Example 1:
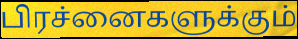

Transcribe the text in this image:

பிரச்னைகளுக்கும்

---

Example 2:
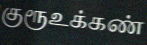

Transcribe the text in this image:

குரூஉக்கண்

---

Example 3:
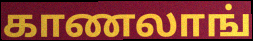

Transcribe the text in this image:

காணலாங்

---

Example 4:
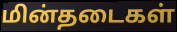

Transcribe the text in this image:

மின்தடைகள்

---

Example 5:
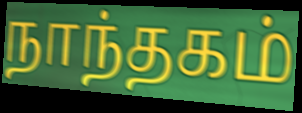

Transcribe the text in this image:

நாந்தகம்